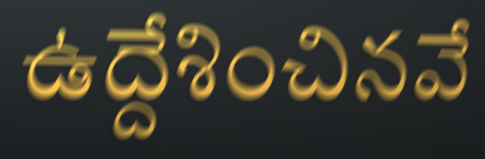
ఉద్దేశించినవే